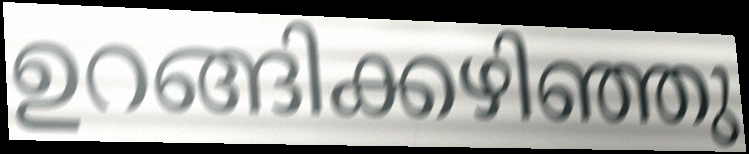
ഉറങ്ങിക്കഴിഞ്ഞു